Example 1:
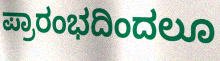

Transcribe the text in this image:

ಪ್ರಾರಂಭದಿಂದಲೂ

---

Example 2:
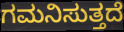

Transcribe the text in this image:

ಗಮನಿಸುತ್ತದೆ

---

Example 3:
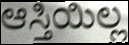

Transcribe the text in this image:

ಆಸ್ತಿಯಿಲ್ಲ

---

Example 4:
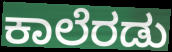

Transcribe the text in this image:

ಕಾಲೆರಡು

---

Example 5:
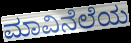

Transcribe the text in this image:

ಮಾವಿನೆಲೆಯ